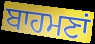
ਬਾਹਮਣਾਂ